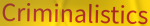
Criminalistics